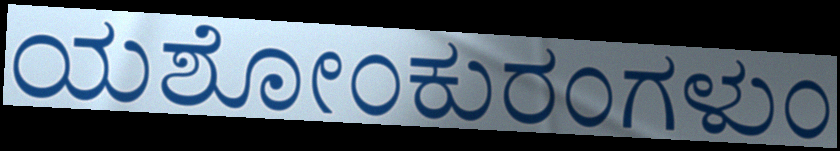
ಯಶೋಂಕುರಂಗಳುಂ